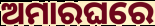
ଅମାରଘରେ